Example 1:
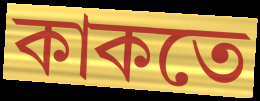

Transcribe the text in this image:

কাকতে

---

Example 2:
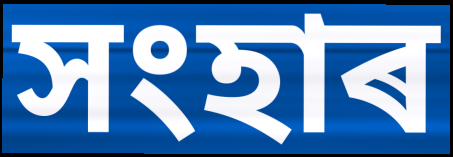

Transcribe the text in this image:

সংহাৰ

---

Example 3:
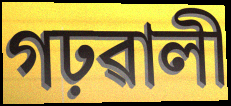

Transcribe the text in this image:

গঢ়ৱালী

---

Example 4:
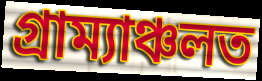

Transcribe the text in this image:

গ্ৰাম্যাঞ্চলত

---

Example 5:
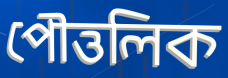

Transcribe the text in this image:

পৌত্তলিক